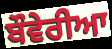
ਬੌਵੇਰੀਆ